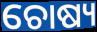
ଚୋଷ୍ୟ